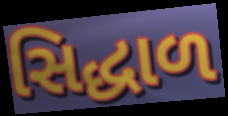
સિદ્ધાળ